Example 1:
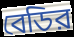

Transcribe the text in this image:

বেডির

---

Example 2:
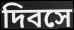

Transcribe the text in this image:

দিবসে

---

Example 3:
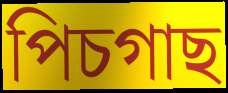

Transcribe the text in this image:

পিচগাছ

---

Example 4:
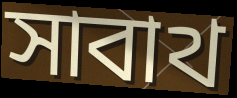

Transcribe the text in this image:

সাবাথ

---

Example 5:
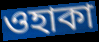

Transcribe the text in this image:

ওহাকা